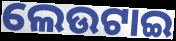
ଲେଉଟାଇ